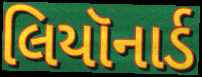
લિયૉનાર્ડ